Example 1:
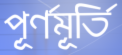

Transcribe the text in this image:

পূর্ণমূর্তি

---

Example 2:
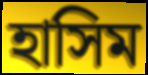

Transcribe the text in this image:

হাসিম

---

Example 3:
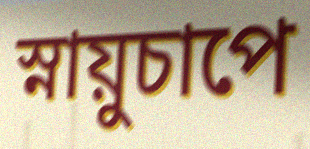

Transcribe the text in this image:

স্নায়ুচাপে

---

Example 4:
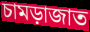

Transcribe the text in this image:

চামড়াজাত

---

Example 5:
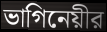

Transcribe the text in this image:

ভাগিনেয়ীর